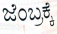
ಜೆಂಬ್ರಕ್ಕೆ